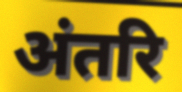
अंतरि